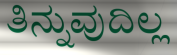
ತಿನ್ನುವುದಿಲ್ಲ